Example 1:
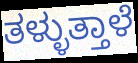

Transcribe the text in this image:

ತಳ್ಳುತ್ತಾಳೆ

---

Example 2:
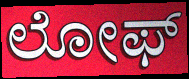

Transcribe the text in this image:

ಲೋಫ್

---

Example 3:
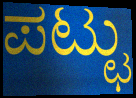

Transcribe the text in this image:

ಪಟ್ಟು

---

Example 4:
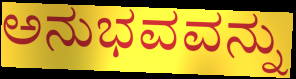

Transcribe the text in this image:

ಅನುಭವವನ್ನು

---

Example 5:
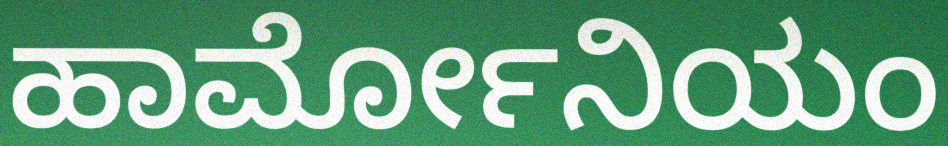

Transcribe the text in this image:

ಹಾರ್ಮೋನಿಯಂ